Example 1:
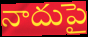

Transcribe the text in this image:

నాదుపై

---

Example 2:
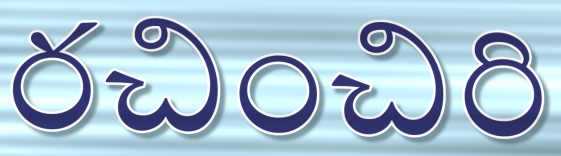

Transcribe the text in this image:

రచించిరి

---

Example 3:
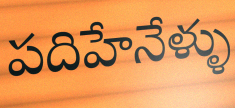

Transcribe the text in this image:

పదిహేనేళ్ళు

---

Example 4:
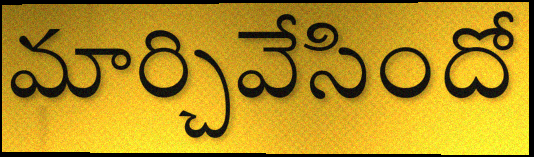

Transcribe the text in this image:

మార్చివేసిందో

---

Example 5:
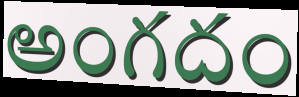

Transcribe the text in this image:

అంగదం